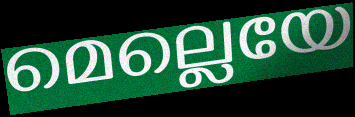
മെല്ലെയേ